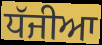
ਧੱਜੀਆ